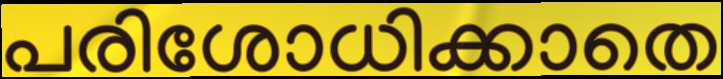
പരിശോധിക്കാതെ